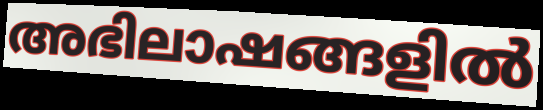
അഭിലാഷങ്ങളിൽ